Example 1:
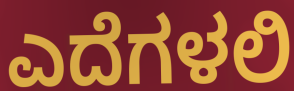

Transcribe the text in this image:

ಎದೆಗಳಲಿ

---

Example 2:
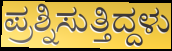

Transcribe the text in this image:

ಪ್ರಶ್ನಿಸುತ್ತಿದ್ದಳು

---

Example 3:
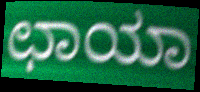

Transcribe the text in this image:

ಛಾಯಾ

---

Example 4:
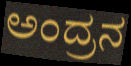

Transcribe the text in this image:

ಅಂದ್ರನ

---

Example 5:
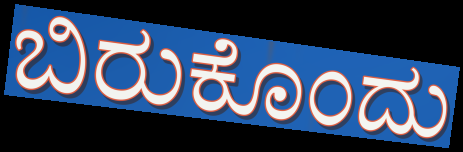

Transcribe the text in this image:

ಬಿರುಕೊಂದು